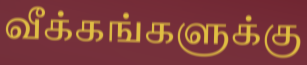
வீக்கங்களுக்கு